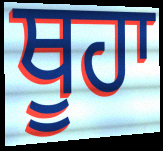
ਥੂਹਾ